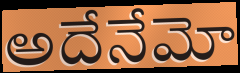
అదేనేమో